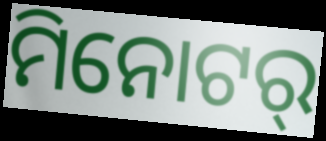
ମିନୋଟର୍